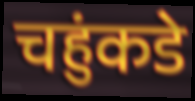
चहुंकडे